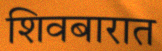
शिवबारात